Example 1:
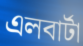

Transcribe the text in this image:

এলবার্টা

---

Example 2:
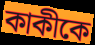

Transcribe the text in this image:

কাকীকে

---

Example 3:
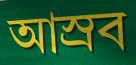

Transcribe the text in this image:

আস্রব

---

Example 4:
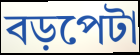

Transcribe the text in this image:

বড়পেটা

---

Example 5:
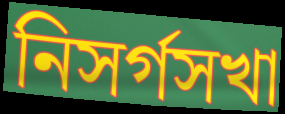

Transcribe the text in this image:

নিসর্গসখা